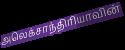
அலெக்சாந்திரியாவின்